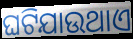
ଘଟିଯାଉଥାଏ